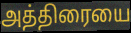
அத்திரையை